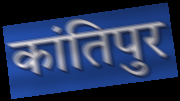
कांतिपुर